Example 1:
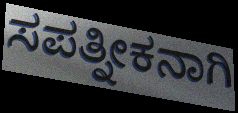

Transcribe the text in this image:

ಸಪತ್ನೀಕನಾಗಿ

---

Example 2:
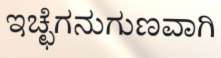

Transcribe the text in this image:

ಇಚ್ಛೆಗನುಗುಣವಾಗಿ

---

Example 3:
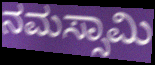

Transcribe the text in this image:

ನಮಸ್ಸಾಮಿ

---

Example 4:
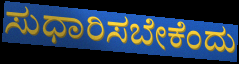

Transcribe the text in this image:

ಸುಧಾರಿಸಬೇಕೆಂದು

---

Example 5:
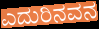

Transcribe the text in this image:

ಎದುರಿನವನ